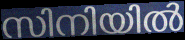
സിനിയിൽ